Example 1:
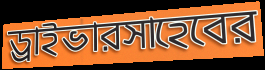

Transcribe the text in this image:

ড্রাইভারসাহেবের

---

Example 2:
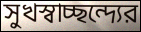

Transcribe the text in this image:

সুখস্বাচ্ছন্দ্যের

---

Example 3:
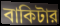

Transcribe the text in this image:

বাকিটার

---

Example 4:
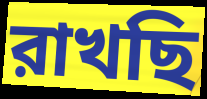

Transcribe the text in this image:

রাখছি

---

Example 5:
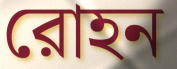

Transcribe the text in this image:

রোহন